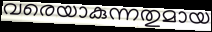
വരെയാകുന്നതുമായ